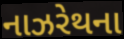
નાઝરેથના